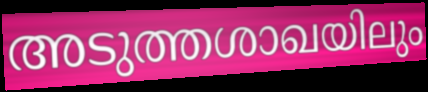
അടുത്തശാഖയിലും